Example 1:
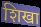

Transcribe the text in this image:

शिखा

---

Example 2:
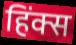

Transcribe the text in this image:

हिंक्स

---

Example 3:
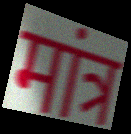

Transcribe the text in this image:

मांत्र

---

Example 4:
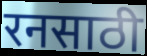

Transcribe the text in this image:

रनसाठी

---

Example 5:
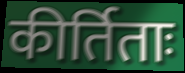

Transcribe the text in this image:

कीर्तिताः